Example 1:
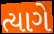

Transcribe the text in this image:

ત્યાગે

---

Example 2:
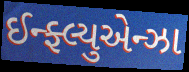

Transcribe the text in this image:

ઈન્ફ્લ્યુએન્ઝા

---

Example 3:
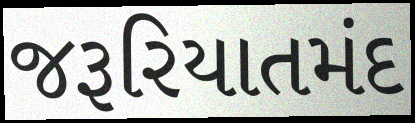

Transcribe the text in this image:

જરૂરિયાતમંદ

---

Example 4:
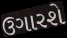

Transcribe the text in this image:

ઉગારશે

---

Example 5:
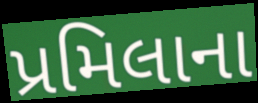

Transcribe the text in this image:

પ્રમિલાના